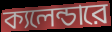
ক্যলেন্ডারে